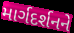
માર્ગદર્શનને